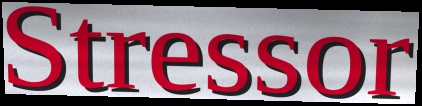
Stressor